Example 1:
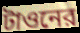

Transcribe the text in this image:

টাওনের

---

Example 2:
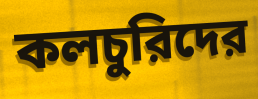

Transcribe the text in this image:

কলচুরিদের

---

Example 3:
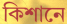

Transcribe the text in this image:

কিশানে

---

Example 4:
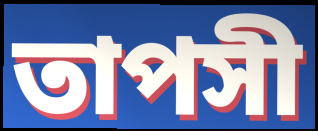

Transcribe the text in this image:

তাপসী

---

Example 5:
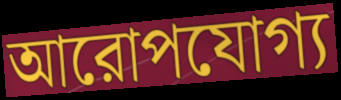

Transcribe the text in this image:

আরোপযোগ্য